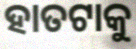
ହାତଟାକୁ